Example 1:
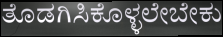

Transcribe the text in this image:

ತೊಡಗಿಸಿಕೊಳ್ಳಲೇಬೇಕು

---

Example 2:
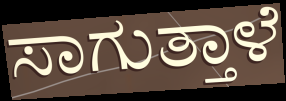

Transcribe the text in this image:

ಸಾಗುತ್ತಾಳೆ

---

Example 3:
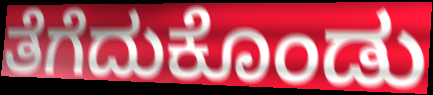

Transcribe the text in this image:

ತೆಗೆದುಕೊಂಡು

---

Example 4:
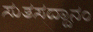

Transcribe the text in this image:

ಸುತಸದ್ದಾನಂ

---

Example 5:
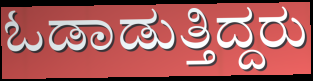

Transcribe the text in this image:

ಓಡಾಡುತ್ತಿದ್ದರು